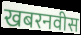
खबरनवीस